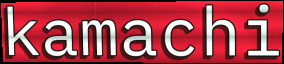
kamachi